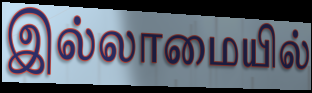
இல்லாமையில்